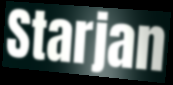
Starjan